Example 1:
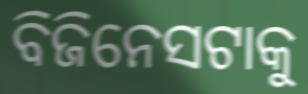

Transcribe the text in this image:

ବିଜିନେସଟାକୁ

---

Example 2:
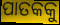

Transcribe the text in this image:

ପାତକକୁ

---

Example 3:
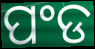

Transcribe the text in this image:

ପଂଡ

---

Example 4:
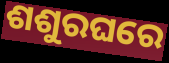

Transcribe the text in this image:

ଶଶୁରଘରେ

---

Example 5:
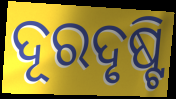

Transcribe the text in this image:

ଦୂରଦୃଷ୍ଟି